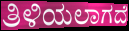
ತಿಳಿಯಲಾಗದೆ